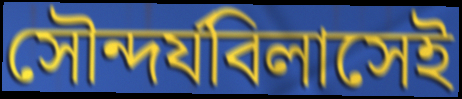
সৌন্দর্যবিলাসেই